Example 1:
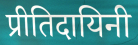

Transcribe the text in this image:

प्रीतिदायिनी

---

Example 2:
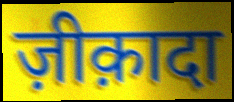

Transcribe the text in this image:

ज़ीक़ादा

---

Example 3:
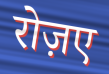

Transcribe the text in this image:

रोज़ए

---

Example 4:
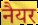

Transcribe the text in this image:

नैयर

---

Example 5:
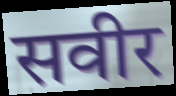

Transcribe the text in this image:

सवीर